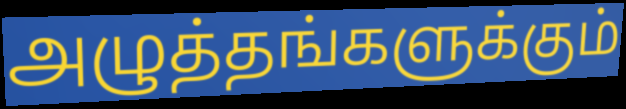
அழுத்தங்களுக்கும்